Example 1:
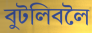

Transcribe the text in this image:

বুটলিবলৈ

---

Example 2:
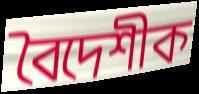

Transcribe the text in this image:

বৈদেশীক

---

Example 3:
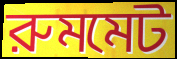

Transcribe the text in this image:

ৰুমমেট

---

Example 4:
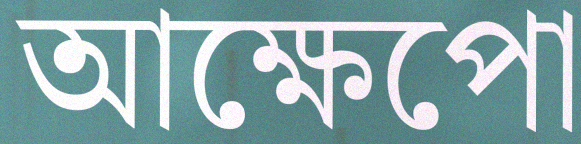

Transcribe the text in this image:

আক্ষেপো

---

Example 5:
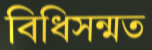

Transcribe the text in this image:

বিধিসন্মত